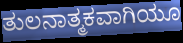
ತುಲನಾತ್ಮಕವಾಗಿಯೂ